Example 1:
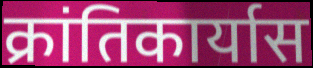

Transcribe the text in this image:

क्रांतिकार्यास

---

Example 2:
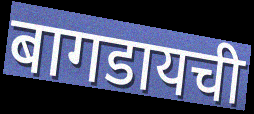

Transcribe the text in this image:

बागडायची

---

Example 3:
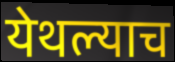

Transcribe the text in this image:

येथल्याच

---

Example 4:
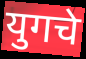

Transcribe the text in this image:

युगचे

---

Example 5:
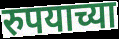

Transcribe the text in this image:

रुपयाच्या